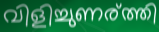
വിളിച്ചുണര്ത്തി